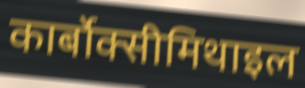
कार्बोक्सीमिथाइल